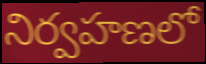
నిర్వహణలో